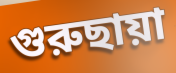
গুরুছায়া